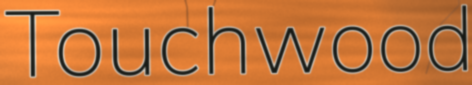
Touchwood